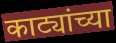
काट्यांच्या